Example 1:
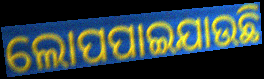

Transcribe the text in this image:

ଲୋପପାଇଯାଉଛି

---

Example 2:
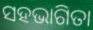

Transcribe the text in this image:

ସହଭାଗିତା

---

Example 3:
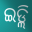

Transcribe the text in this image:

ଇଡ୍ଲି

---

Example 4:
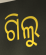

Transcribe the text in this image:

ଗିଲୁ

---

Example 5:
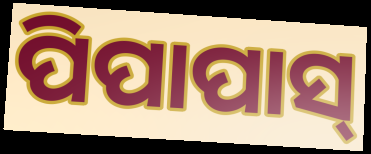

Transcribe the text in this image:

ପିପାପାସ୍